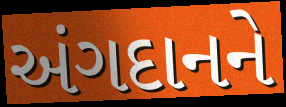
અંગદાનને